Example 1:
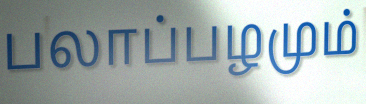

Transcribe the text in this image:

பலாப்பழமும்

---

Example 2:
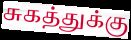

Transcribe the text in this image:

சுகத்துக்கு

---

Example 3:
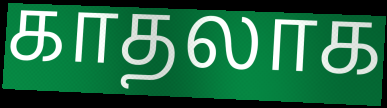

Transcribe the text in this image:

காதலாக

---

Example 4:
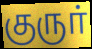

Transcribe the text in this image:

குருர்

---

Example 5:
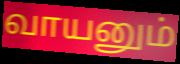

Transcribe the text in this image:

வாயனும்